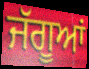
ਜੱਗੂਆਂ